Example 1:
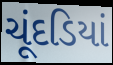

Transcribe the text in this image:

ચૂંદડિયાં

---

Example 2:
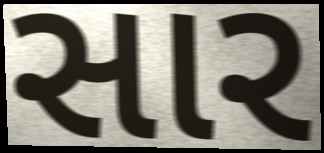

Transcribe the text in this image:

સાર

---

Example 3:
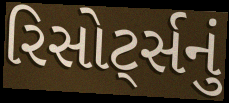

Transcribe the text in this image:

રિસોર્ટ્સનું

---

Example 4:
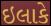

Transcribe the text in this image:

ઇલાકે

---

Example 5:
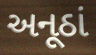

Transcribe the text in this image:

અનૂઠાં